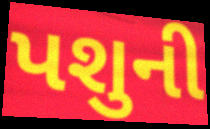
પશુની